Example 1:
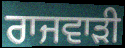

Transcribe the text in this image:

ਰਾਜਵਾੜੀ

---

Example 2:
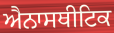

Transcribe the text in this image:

ਐਨਾਸਥੀਟਿਕ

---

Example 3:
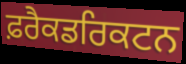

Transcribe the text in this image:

ਫ਼ਰੈਕਡਰਿਕਟਨ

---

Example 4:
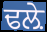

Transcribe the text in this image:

ਢਲ਼ੇ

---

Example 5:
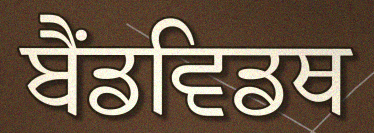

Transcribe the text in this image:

ਬੈਂਡਵਿਡਥ